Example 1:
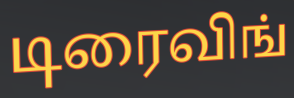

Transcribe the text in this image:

டிரைவிங்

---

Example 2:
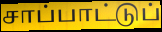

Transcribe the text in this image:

சாப்பாட்டுப்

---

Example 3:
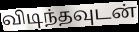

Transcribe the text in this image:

விடிந்தவுடன்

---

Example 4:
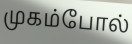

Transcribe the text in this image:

முகம்போல்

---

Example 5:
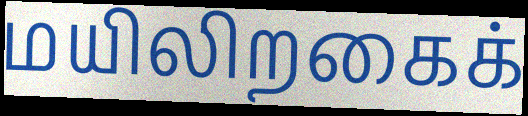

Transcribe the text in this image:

மயிலிறகைக்